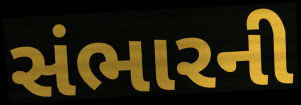
સંભારની